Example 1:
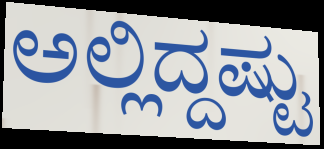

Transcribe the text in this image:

ಅಲ್ಲಿದ್ದಷ್ಟು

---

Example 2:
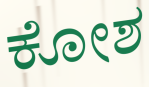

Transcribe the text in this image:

ಕೋಶ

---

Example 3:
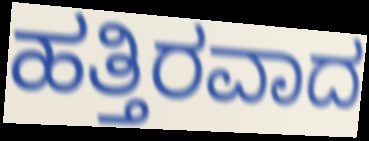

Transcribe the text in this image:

ಹತ್ತಿರವಾದ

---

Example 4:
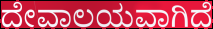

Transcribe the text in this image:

ದೇವಾಲಯವಾಗಿದೆ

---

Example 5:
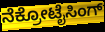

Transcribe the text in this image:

ನೆಕ್ರೋಟೈಸಿಂಗ್